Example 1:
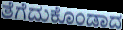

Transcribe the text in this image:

ತೆಗೆದುಕೊಂಡಾದ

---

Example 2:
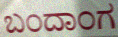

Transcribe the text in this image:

ಬಂದಾಂಗ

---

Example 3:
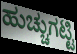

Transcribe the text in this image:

ಹುಚ್ಚುಗಟ್ಟಿ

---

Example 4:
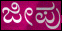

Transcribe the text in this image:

ಜೀಪು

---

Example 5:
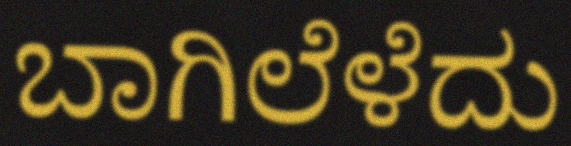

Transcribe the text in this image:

ಬಾಗಿಲೆಳೆದು